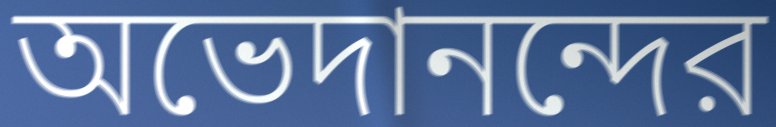
অভেদানন্দের